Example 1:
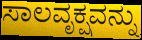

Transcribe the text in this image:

ಸಾಲವೃಕ್ಷವನ್ನು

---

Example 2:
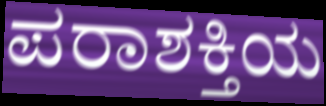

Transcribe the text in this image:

ಪರಾಶಕ್ತಿಯ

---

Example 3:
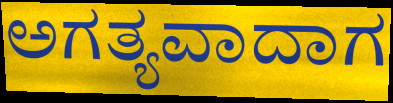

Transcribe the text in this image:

ಅಗತ್ಯವಾದಾಗ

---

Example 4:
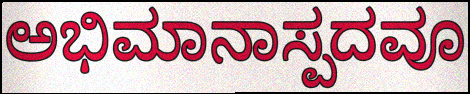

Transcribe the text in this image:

ಅಭಿಮಾನಾಸ್ಪದವೂ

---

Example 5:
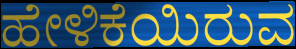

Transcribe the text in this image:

ಹೇಳಿಕೆಯಿರುವ